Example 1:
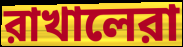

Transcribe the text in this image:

রাখালেরা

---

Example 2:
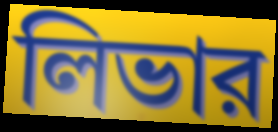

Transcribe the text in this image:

লিভার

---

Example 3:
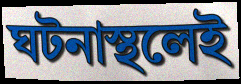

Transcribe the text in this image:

ঘটনাস্থলেই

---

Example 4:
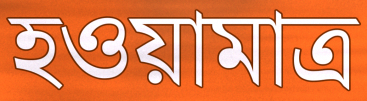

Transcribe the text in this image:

হওয়ামাত্র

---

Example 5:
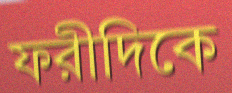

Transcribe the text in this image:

ফরীদিকে